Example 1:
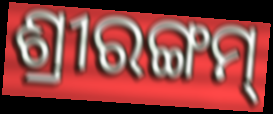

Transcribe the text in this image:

ଶ୍ରୀରଙ୍ଗମ୍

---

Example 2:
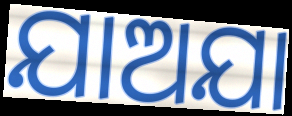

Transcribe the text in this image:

ଯାଅଯା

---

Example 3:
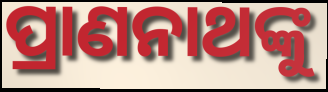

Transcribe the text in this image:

ପ୍ରାଣନାଥଙ୍କୁ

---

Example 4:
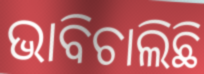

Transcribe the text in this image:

ଭାବିଚାଲିଛି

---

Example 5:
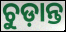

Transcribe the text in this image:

ଚୁଡ଼ାନ୍ତ